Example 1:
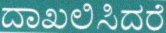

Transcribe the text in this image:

ದಾಖಲಿಸಿದರೆ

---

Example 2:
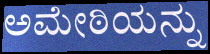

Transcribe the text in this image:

ಅಮೇಠಿಯನ್ನು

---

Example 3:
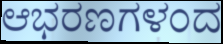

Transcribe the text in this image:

ಆಭರಣಗಳಂದ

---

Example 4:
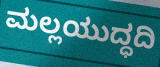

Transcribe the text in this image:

ಮಲ್ಲಯುದ್ಧದಿ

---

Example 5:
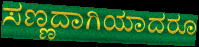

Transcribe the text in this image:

ಸಣ್ಣದಾಗಿಯಾದರೂ